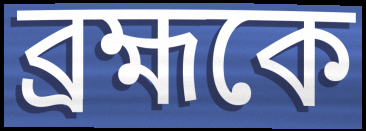
ব্রহ্মকে